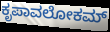
ಕೃಪಾವಲೋಕಮ್